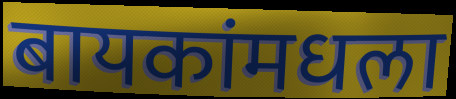
बायकांमधला